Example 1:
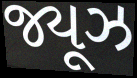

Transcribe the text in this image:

જ્યૂઝ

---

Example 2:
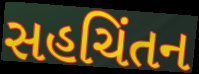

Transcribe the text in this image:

સહચિંતન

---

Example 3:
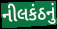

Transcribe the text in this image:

નીલકંઠનું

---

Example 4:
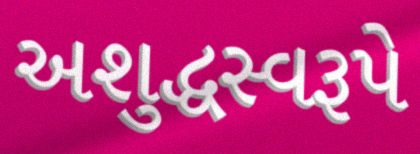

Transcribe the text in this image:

અશુદ્ધસ્વરૂપે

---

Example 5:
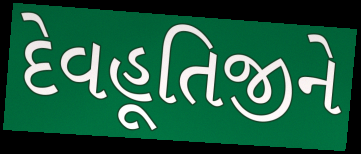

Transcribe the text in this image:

દેવહૂતિજીને